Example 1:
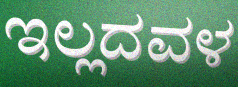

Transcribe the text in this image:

ಇಲ್ಲದವಳ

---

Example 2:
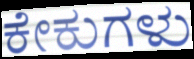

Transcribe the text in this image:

ಕೇಕುಗಳು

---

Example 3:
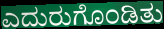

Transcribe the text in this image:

ಎದುರುಗೊಂಡಿತು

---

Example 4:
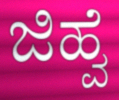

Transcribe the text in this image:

ಜಿಹ್ವೆ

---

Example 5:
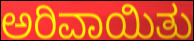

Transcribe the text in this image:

ಅರಿವಾಯಿತು